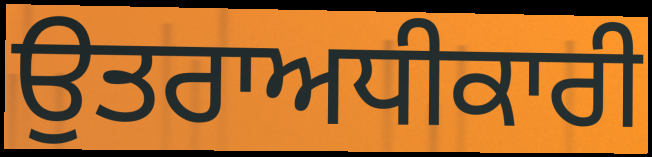
ਉਤਰਾਅਧੀਕਾਰੀ